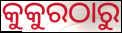
କୁକୁରଠାରୁ